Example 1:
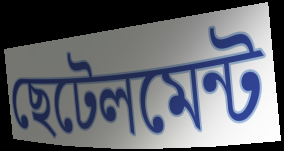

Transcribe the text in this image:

ছেটেলমেন্ট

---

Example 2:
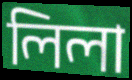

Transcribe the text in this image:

লিলা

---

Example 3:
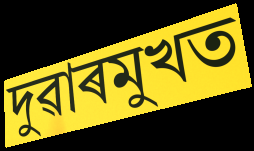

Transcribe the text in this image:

দুৱাৰমুখত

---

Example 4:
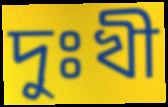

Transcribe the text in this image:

দুঃখী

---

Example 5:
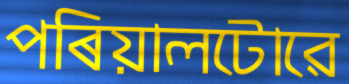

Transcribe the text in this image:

পৰিয়ালটোৱে